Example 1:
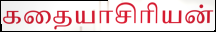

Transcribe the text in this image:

கதையாசிரியன்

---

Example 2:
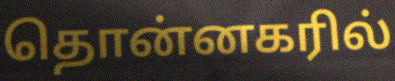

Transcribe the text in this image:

தொன்னகரில்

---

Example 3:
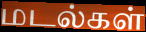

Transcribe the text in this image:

மடல்கள்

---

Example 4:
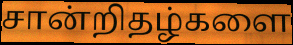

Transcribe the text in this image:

சான்றிதழ்களை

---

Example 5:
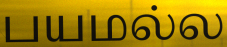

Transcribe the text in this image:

பயமல்ல